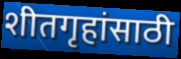
शीतगृहांसाठी